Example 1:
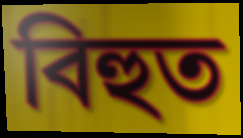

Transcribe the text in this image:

বিহুত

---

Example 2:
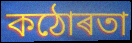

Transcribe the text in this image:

কঠোৰতা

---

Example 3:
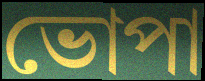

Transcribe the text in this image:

ভোপা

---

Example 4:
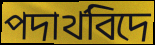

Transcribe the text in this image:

পদাৰ্থবিদে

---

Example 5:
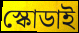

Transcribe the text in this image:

স্কোডাই